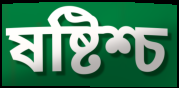
ষষ্টিশ্চ